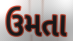
ઉમતા